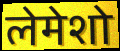
लेमेशो